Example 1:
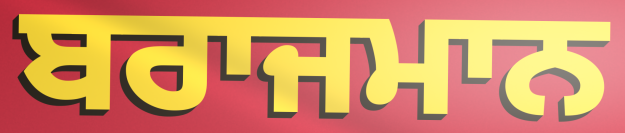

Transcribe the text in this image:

ਬਰਾਜਮਾਨ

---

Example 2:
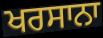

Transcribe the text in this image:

ਖਰਸਾਨਾ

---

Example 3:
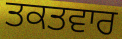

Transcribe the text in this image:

ਤਕਤਵਾਰ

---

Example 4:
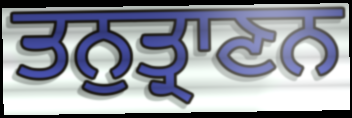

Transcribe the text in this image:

ਤਨੁਤ੍ਰਾਣਨ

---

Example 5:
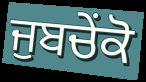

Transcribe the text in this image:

ਜੁਬਚੇਂਕੋ